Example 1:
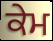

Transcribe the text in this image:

ਕੇਮ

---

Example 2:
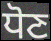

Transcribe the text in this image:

ਧੋਣ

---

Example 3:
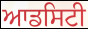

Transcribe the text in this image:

ਆਡਸਿਟੀ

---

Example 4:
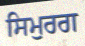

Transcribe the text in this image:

ਸਿਮੁਰਗ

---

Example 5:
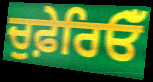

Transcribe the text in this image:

ਚੁਫ਼ੇਰਿਓਁ